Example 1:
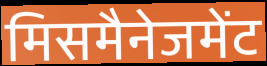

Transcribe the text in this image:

मिसमैनेजमेंट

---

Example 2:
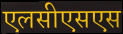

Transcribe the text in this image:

एलसीएसएस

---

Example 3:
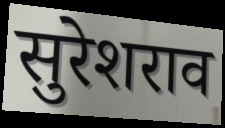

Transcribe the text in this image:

सुरेशराव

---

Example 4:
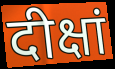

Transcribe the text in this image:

दीक्षां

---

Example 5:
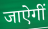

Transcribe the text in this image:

जाऐगीं